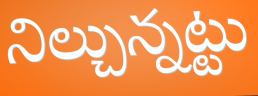
నిల్చున్నట్టు